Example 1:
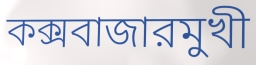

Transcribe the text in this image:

কক্সবাজারমুখী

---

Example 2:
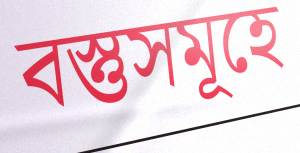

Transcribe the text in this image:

বস্তুসমূহে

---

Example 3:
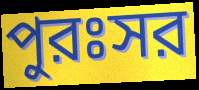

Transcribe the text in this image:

পুরঃসর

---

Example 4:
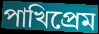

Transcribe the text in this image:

পাখিপ্রেম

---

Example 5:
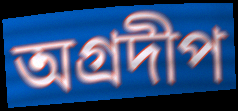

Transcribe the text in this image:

অগ্রদীপ